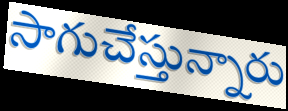
సాగుచేస్తున్నారు